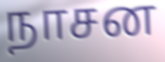
நாசன